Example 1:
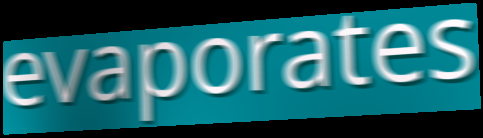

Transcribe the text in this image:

evaporates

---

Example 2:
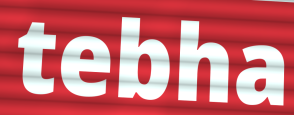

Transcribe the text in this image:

tebha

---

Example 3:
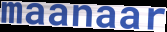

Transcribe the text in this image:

maanaar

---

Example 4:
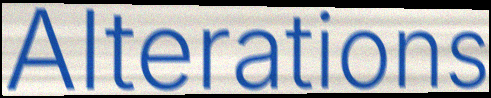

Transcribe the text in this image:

Alterations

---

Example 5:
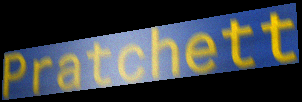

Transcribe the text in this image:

Pratchett